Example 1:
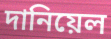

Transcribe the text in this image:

দানিয়েল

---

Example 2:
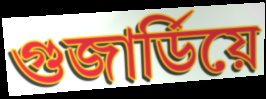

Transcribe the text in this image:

গুজাৰ্ডিয়ে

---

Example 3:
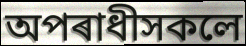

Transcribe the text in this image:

অপৰাধীসকলে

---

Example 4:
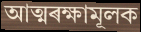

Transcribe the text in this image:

আত্মৰক্ষামূলক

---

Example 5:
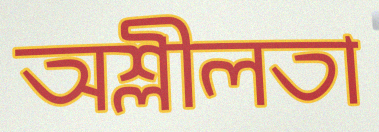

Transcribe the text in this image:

অশ্লীলতা